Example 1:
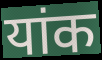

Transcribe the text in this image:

यांक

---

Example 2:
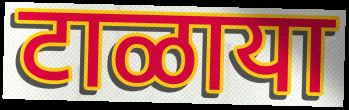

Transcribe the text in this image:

टाळाया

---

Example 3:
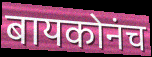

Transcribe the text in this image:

बायकोनंच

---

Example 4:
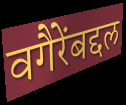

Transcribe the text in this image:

वगैरेंबद्दल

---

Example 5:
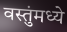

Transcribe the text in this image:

वस्तुंमध्ये